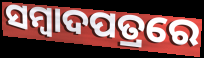
ସମ୍ୱାଦପତ୍ରରେ